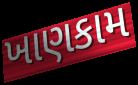
ખાણકામ